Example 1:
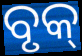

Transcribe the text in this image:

ବୃକ୍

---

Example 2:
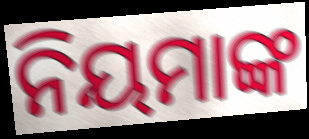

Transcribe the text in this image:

ନିୟମାଙ୍କ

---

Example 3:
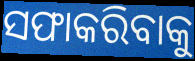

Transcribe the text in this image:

ସଫାକରିବାକୁ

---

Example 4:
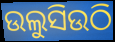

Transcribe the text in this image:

ଉଲୁସିଉଠି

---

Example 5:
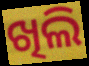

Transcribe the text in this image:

ଖିଲି